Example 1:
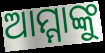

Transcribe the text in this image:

ଆମ୍ମାଙ୍କୁ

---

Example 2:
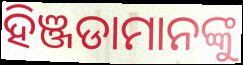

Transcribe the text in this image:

ହିଞ୍ଜଡାମାନଙ୍କୁ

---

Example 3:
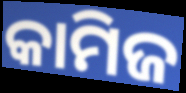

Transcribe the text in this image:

କାମିଜ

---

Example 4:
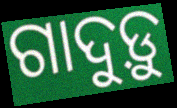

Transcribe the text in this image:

ଗାଦୁଡ଼ୁ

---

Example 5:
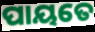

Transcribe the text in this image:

ପାୟତେ